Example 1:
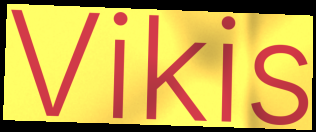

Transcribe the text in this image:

Vikis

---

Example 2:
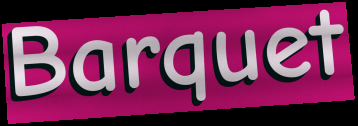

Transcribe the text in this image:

Barquet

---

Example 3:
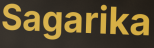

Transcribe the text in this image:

Sagarika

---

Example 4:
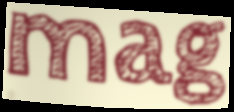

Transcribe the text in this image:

mag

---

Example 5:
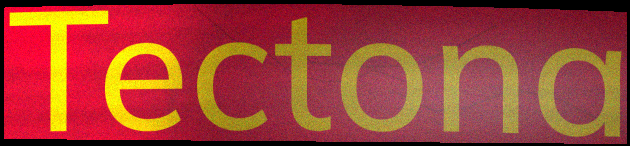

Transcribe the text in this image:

Tectona